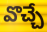
వొచ్చే